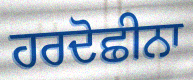
ਹਰਦੋਛੀਨਾ